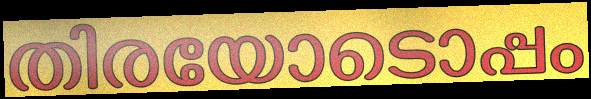
തിരയോടൊപ്പം